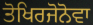
ਤੋਖਿਰਜੋਨੋਵਾ